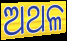
ଅଥଳ